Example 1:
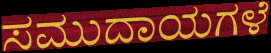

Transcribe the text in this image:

ಸಮುದಾಯಗಳೆ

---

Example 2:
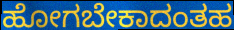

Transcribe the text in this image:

ಹೋಗಬೇಕಾದಂತಹ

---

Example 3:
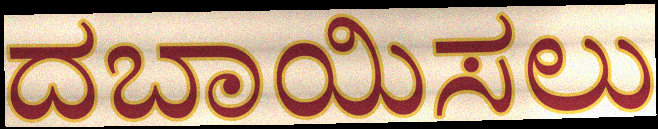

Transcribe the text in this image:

ದಬಾಯಿಸಲು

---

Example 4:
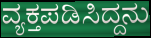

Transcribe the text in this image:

ವ್ಯಕ್ತಪಡಿಸಿದ್ದನು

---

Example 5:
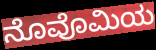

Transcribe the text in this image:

ನೊವೊಮಿಯ